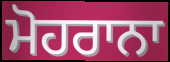
ਮੋਹਰਾਨਾ